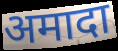
अमादा